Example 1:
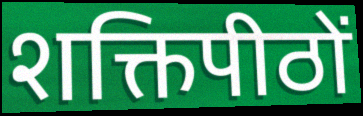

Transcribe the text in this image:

शक्तिपीठों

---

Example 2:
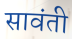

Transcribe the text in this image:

सावंती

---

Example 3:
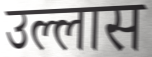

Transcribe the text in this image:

उल्लास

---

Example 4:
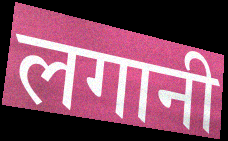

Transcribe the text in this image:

लगानी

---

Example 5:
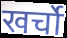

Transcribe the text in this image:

खर्चो